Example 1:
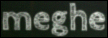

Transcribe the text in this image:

meghe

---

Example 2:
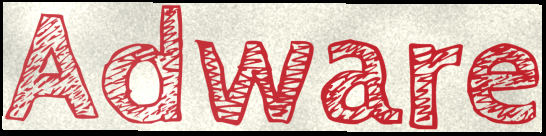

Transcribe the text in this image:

Adware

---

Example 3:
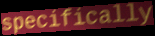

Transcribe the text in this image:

specifically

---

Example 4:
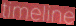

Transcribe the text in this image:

timeline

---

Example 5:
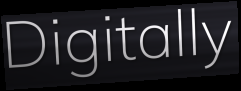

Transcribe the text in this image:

Digitally